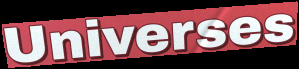
Universes